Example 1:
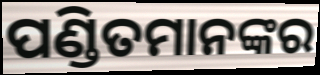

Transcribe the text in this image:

ପଣ୍ଡିତମାନଙ୍କର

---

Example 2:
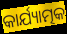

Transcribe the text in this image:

କାର୍ଯ୍ୟାତ୍ମକ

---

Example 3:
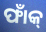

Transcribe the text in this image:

ଫାଁକ୍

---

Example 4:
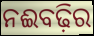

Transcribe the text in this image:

ନଈବଢ଼ିର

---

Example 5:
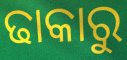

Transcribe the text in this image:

ଢାକାରୁ